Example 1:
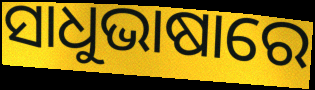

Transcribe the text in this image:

ସାଧୁଭାଷାରେ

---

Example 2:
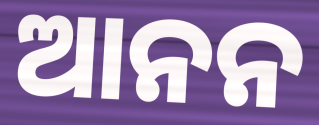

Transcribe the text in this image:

ଆନନ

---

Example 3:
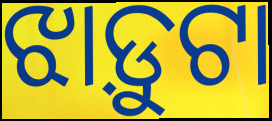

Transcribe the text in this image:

ଝାଡ଼ୁଟା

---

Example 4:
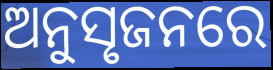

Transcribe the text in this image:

ଅନୁସୃଜନରେ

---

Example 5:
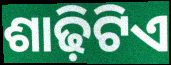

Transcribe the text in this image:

ଶାଢ଼ିଟିଏ